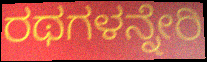
ರಥಗಳನ್ನೇರಿ